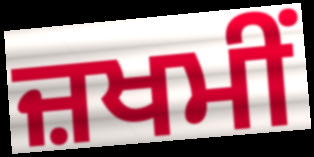
ਜ਼ਖਮੀਂ